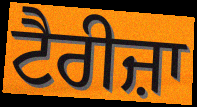
ਟੈਰੀਜ਼ਾ